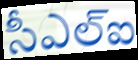
సీఎల్ఐ